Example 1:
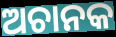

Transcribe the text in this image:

ଅଚାନକ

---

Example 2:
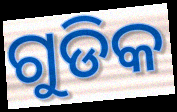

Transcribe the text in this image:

ଗୁଡିକ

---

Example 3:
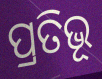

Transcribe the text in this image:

ପ୍ରତିଭୂ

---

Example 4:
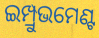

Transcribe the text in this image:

ଇମ୍ପ୍ରୁଭମେଣ୍ଟ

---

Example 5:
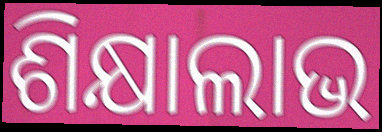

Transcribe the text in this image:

ଶିକ୍ଷାଲାଭ